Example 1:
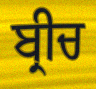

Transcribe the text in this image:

ਬ੍ਰੀਚ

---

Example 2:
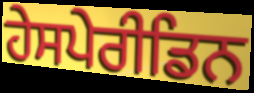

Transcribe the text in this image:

ਹੇਸਪੇਰੀਡਿਨ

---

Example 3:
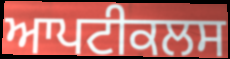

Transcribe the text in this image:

ਆਪਟੀਕਲਸ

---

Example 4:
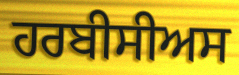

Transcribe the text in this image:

ਹਰਬੀਸੀਅਸ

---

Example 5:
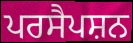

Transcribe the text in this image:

ਪਰਸੈਪਸ਼ਨ